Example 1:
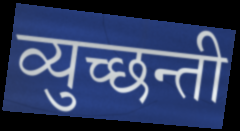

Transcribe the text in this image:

व्युच्छन्ती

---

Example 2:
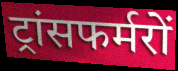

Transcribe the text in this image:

ट्रांसफर्मरों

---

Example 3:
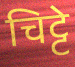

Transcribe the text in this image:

चिट्टे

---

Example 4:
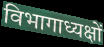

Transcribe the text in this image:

विभागाध्यक्षों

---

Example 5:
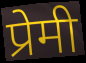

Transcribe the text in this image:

प्रेमी